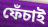
ফেঁচাই